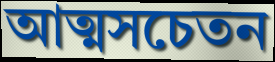
আত্মসচেতন